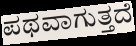
ಪಥವಾಗುತ್ತದೆ